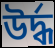
উৰ্দ্ধ